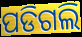
ପଡିଗଲି